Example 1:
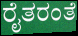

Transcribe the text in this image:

ರೈತರಂತೆ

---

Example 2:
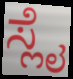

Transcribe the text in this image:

ಸ್ಲೈ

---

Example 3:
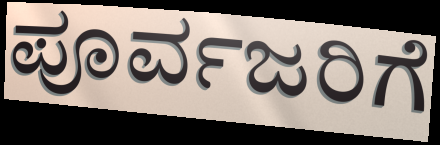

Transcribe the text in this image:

ಪೂರ್ವಜರಿಗೆ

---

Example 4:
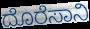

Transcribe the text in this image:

ದೊರೆಸಾನಿ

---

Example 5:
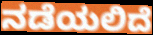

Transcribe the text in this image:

ನಡೆಯಲಿದೆ